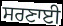
ਸਰਣਾਈ